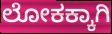
ಲೋಕಕ್ಕಾಗಿ